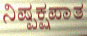
ನಿಷ್ಪಕ್ಷಪಾತ